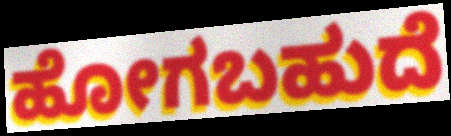
ಹೋಗಬಹುದೆ